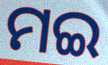
ମଇ